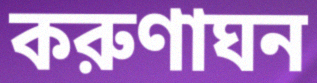
করুণাঘন